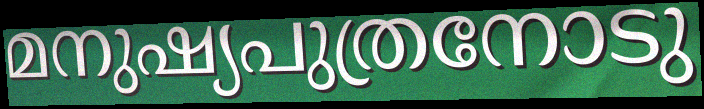
മനുഷ്യപുത്രനോടു